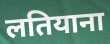
लतियाना